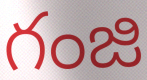
గంజి